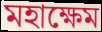
মহাক্ষেম